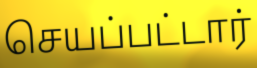
செயப்பட்டார்